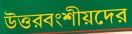
উত্তরবংশীয়দের